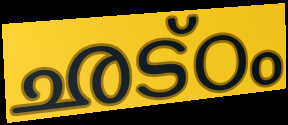
ഛട്ഠം